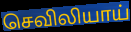
செவிலியாய்